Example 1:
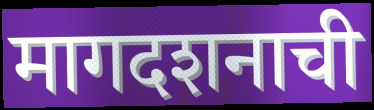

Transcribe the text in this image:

मागदशनाची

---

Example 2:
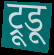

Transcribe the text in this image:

ट्रूडू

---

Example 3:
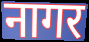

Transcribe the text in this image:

नागर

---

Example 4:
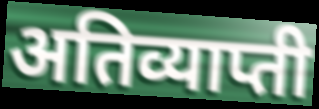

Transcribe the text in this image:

अतिव्याप्ती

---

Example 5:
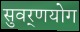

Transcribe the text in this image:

सुवर्णयोग